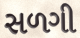
સળગી